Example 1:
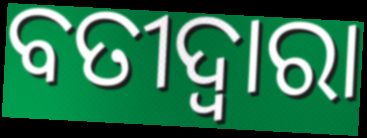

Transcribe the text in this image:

ବତୀଦ୍ୱାରା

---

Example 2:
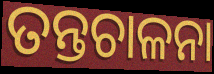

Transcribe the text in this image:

ତନ୍ତଚାଳନା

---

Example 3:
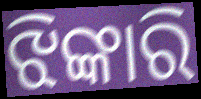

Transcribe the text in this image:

ଝିଙ୍କାରି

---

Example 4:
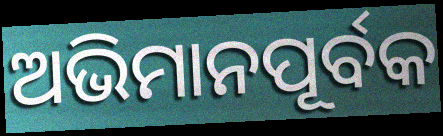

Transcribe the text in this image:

ଅଭିମାନପୂର୍ବକ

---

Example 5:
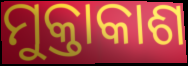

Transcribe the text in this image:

ମୁକ୍ତାକାଶ